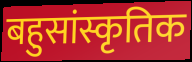
बहुसांस्कृतिक